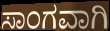
ಸಾಂಗವಾಗಿ